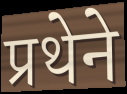
प्रथेने